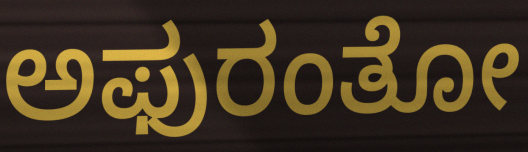
ಅಫುರಂತೋ